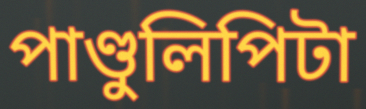
পাণ্ডুলিপিটা